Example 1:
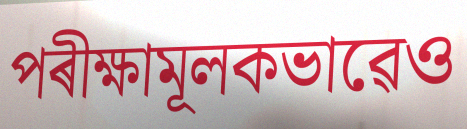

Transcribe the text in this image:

পৰীক্ষামূলকভাৱেও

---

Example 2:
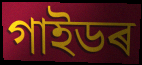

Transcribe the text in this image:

গাইডৰ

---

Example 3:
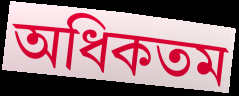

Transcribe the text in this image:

অধিকতম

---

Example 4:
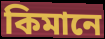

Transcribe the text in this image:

কিমানে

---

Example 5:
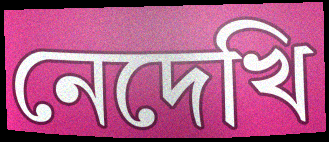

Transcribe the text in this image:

নেদেখি